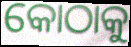
କୋଠାକୁ